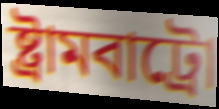
ষ্ট্ৰামবাট্ৰো